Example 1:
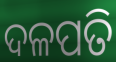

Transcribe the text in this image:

ଦଳପତି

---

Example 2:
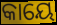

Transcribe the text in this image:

କାୟେ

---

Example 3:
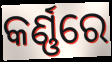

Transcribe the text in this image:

କର୍ଣ୍ଣରେ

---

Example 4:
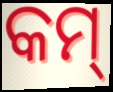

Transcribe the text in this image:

କମ୍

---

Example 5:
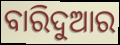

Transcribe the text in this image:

ବାରିଦୁଆର